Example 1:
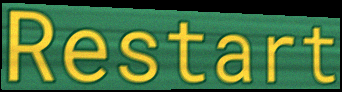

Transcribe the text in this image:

Restart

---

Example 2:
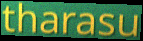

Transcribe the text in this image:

tharasu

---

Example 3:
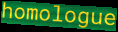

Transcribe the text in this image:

homologue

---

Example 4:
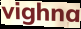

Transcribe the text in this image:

vighna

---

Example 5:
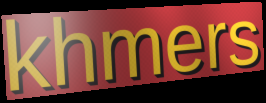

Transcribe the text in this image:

khmers